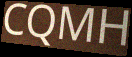
CQMH